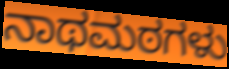
ನಾಥಮಠಗಳು